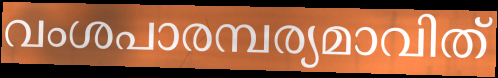
വംശപാരമ്പര്യമാവിത്